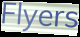
Flyers